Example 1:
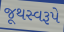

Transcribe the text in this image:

જૂથસ્વરૂપે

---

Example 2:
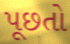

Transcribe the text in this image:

પૂછતો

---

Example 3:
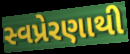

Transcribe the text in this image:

સ્વપ્રેરણાથી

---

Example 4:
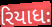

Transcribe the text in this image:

રિયાધઃ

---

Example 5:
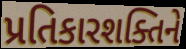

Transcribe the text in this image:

પ્રતિકારશક્તિને